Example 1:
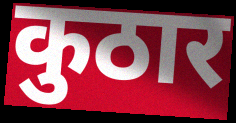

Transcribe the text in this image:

कुठार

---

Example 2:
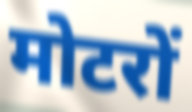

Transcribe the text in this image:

मोटरों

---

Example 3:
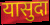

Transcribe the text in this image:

यासुदा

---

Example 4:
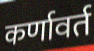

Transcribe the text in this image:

कर्णावर्त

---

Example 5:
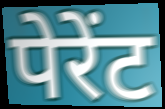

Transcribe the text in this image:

पेरेंट